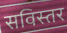
सविस्तर